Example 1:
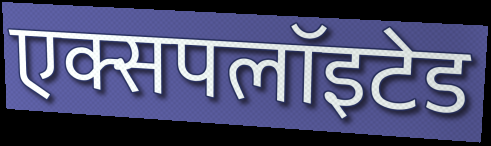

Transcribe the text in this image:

एक्सपलॉइटेड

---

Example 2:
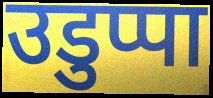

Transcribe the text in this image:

उडुप्पा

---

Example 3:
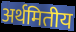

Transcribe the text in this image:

अर्थमितीय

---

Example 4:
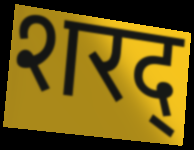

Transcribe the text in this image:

शरद्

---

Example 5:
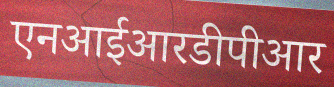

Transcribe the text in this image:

एनआईआरडीपीआर